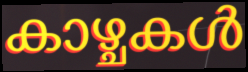
കാഴ്ചകൾ